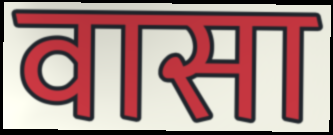
वासा